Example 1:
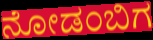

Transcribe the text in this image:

ನೋಡಂಬಿಗ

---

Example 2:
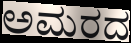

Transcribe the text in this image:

ಅಮರದ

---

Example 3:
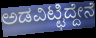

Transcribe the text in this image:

ಅಡವಿಟ್ಟಿದ್ದೇನೆ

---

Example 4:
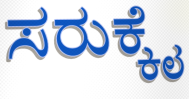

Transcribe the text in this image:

ಸರುಕ್ಕೈ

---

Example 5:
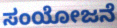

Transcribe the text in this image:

ಸಂಯೋಜನೆ